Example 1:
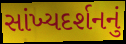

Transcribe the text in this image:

સાંખ્યદર્શનનું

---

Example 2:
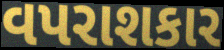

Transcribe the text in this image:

વપરાશકાર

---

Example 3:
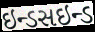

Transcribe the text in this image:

ઇન્ડસઇન્ડ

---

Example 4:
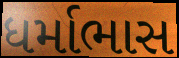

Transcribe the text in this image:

ધર્માભાસ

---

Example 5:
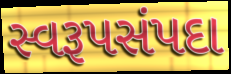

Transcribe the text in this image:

સ્વરૂપસંપદા